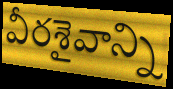
వీరశైవాన్ని